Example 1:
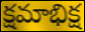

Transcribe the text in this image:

క్షమాభిక్ష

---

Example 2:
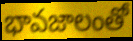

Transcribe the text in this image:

భావజాలంతో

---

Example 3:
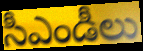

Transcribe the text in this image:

సీఎండీలు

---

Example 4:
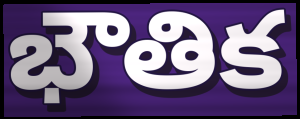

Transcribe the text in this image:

భౌతిక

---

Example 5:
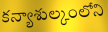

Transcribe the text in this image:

కన్యాశుల్కంలోని